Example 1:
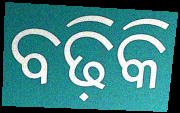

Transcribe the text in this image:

ବଢ଼ିକି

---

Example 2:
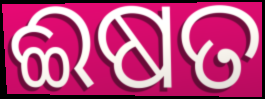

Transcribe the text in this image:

ଈଷତ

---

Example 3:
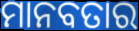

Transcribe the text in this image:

ମାନବତାର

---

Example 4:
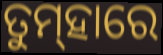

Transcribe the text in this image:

ତୁମ୍‌ହାରେ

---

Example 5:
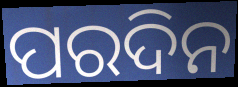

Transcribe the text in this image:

ପରଦିନ